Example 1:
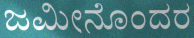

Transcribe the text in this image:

ಜಮೀನೊಂದರ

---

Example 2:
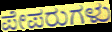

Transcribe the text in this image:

ಪೇಪರುಗಳು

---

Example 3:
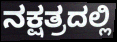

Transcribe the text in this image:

ನಕ್ಷತ್ರದಲ್ಲಿ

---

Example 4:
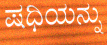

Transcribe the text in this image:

ಷಧಿಯನ್ನು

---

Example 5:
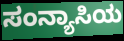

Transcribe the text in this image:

ಸಂನ್ಯಾಸಿಯ